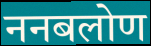
ननबलोण